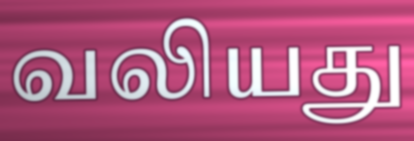
வலியது